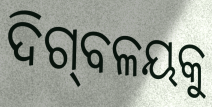
ଦିଗ୍‌ବଳୟକୁ